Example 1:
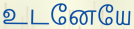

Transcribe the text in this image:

உடனேயே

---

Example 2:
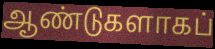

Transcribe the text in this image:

ஆண்டுகளாகப்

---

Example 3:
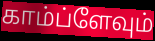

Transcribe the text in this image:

காம்ப்ளேவும்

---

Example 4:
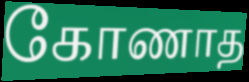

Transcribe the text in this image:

கோணாத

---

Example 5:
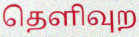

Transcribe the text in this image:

தெளிவுற